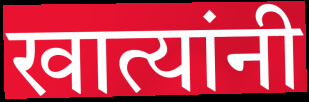
खात्यांनी